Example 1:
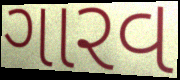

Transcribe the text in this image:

ગારવ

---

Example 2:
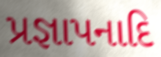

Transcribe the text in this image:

પ્રજ્ઞાપનાદિ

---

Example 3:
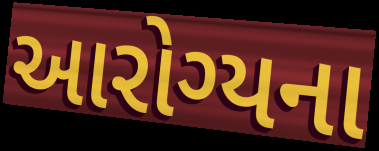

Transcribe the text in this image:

આરોગ્યના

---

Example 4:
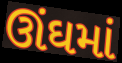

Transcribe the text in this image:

ઊંઘમાં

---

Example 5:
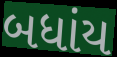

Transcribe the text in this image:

બધાંય